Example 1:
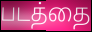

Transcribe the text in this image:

படத்தை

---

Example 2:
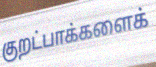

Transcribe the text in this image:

குறட்பாக்களைக்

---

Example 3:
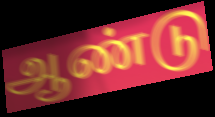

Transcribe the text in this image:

ஆண்டு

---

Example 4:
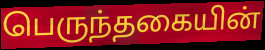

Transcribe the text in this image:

பெருந்தகையின்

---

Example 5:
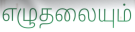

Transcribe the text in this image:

எழுதலையும்